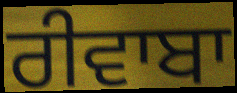
ਰੀਵਾਬਾ